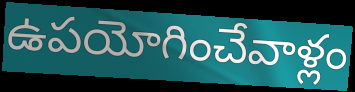
ఉపయోగించేవాళ్లం